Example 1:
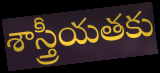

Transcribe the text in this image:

శాస్త్రీయతకు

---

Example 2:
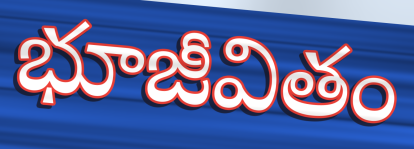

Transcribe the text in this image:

భూజీవితం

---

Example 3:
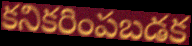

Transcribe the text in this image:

కనికరింపబడక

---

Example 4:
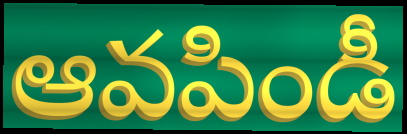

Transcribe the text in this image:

ఆవపిండీ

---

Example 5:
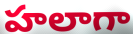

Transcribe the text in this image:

హలాగా